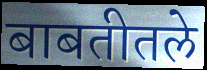
बाबतीतले